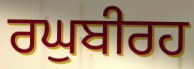
ਰਘੁਬੀਰਹ